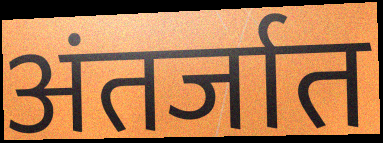
अंतर्जात